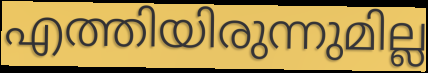
എത്തിയിരുന്നുമില്ല